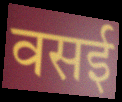
वसई